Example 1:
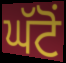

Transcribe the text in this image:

ਘੱਟੋਂ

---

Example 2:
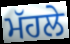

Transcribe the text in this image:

ਮੱਹਲੇ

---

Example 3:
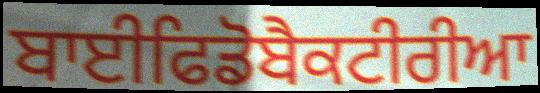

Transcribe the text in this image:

ਬਾਈਫਿਡੋਬੈਕਟੀਰੀਆ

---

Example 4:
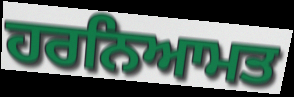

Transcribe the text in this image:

ਹਰਨਿਆਮਤ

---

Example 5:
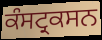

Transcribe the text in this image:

ਕੰਸਟ੍ਰਕਸਨ